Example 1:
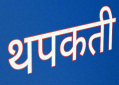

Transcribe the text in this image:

थपकती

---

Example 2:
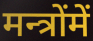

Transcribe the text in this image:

मन्त्रोंमें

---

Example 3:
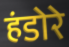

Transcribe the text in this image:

हंडोरे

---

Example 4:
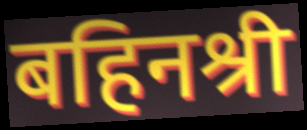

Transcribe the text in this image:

बहिनश्री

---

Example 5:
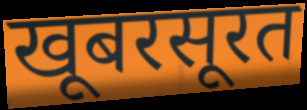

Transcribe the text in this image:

खूबरसूरत